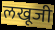
लखूजी